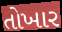
તોખાર